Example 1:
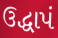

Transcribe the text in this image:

ઉદ્ધાપં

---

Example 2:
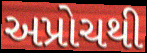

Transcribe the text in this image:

અપ્રોચથી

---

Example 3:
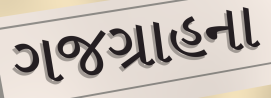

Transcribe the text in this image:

ગજગ્રાહના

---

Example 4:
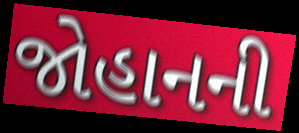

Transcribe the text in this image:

જોહાનની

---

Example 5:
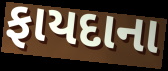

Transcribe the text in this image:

ફાયદાના